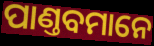
ପାଣ୍ତବମାନେ